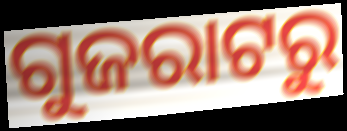
ଗୁଜରାଟରୁ